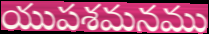
యుపశమనము